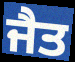
ਜੈਤ